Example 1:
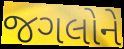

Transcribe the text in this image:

જગલોને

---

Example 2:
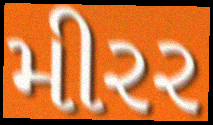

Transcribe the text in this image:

મીરર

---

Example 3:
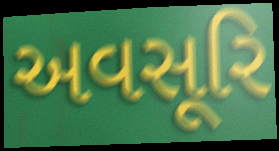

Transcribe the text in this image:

અવસૂરિ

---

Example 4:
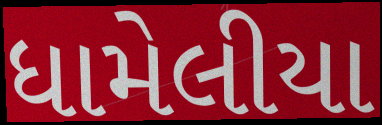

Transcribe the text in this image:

ધામેલીયા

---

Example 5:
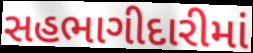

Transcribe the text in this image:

સહભાગીદારીમાં